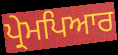
ਪ੍ਰੇਮਪਿਆਰ